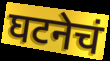
घटनेचं